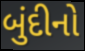
બુંદીનો